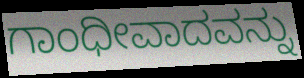
ಗಾಂಧೀವಾದವನ್ನು